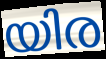
യിര